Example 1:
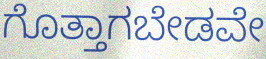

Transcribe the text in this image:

ಗೊತ್ತಾಗಬೇಡವೇ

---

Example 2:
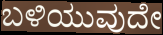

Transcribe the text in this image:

ಬಳಿಯುವುದೇ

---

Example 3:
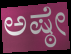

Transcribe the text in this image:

ಅಷ್ಠೇ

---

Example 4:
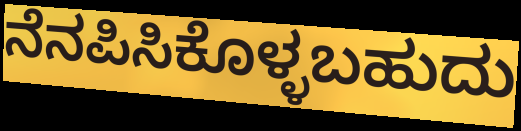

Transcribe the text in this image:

ನೆನಪಿಸಿಕೊಳ್ಳಬಹುದು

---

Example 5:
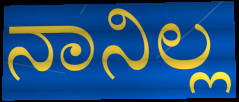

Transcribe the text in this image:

ನಾನಿಲ್ಲ